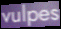
vulpes